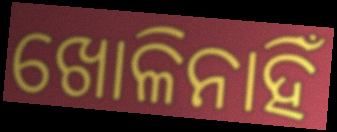
ଖୋଳିନାହିଁ